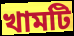
খামটি